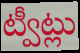
ట్వీట్లు